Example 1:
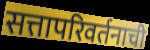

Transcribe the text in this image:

सत्तापरिवर्तनाची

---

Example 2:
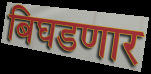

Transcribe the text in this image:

बिघडणार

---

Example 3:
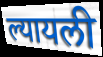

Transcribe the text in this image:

ल्यायली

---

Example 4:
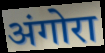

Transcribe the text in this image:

अंगोरा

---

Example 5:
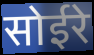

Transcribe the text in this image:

सोईरे